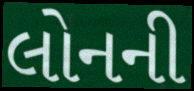
લોનની